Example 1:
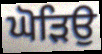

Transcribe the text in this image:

ਘੋੜਿਉ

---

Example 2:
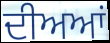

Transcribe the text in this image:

ਦੀਅਆਂ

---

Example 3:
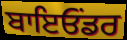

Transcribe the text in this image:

ਬਾਇਓਂਡਰ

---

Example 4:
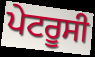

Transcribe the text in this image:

ਪੇਟਰੂਸੀ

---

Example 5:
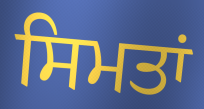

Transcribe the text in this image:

ਸਿਮਤਾਂ